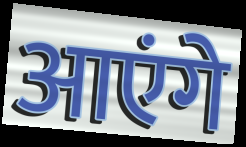
आएंगे